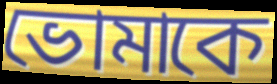
ভোমাকে